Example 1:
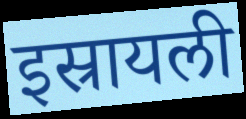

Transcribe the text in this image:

इस्रायली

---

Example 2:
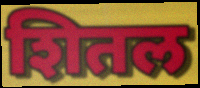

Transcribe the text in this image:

शितल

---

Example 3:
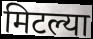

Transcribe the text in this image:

मिटल्या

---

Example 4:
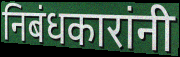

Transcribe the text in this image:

निबंधकारांनी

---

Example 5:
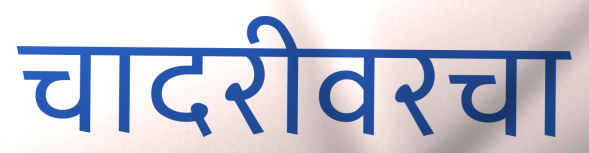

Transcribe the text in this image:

चादरीवरचा